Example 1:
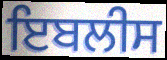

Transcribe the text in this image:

ਇਬਲੀਸ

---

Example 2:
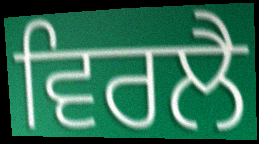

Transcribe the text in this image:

ਵਿਰਲੈ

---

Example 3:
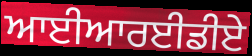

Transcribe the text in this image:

ਆਈਆਰਈਡੀਏ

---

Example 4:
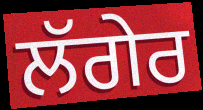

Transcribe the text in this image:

ਲੱਗੇਰ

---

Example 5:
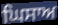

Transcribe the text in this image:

ਘਿਸਾਅ